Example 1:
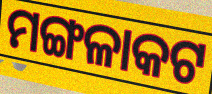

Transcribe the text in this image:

ମଙ୍ଗଳାକଟ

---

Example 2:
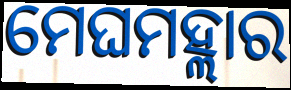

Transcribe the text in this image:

ମେଘମହ୍ଲାର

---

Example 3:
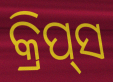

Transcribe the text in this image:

କ୍ରିପ୍‍ସ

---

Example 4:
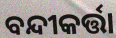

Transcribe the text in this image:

ବନ୍ଦୀକର୍ତ୍ତା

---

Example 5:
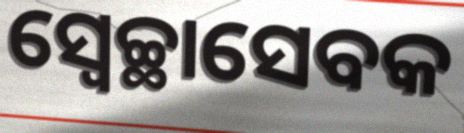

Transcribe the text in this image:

ସ୍ୱେଚ୍ଛାସେବକ